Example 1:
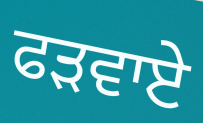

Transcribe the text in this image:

ਫੜਵਾਏ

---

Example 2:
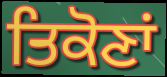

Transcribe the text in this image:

ਤਿਕੋਣਾਂ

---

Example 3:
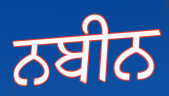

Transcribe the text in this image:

ਨਬੀਨ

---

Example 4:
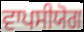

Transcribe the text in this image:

ਵਾਪਸੀਯੋਗ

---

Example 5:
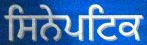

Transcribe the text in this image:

ਸਿਨੇਪਟਿਕ